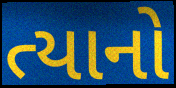
ત્યાનો